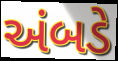
અંબડે